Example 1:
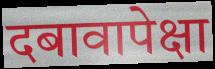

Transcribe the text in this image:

दबावापेक्षा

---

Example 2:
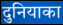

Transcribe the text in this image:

दुनियाका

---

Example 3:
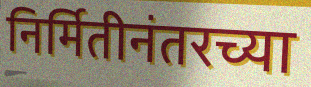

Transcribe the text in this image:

निर्मितीनंतरच्या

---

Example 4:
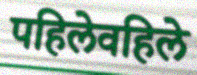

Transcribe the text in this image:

पहिलेवहिले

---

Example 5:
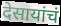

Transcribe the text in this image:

देसायांचं